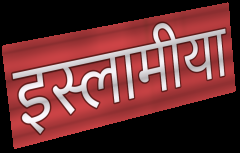
इस्लामीया